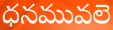
ధనమువలె